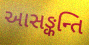
આસઙ્કન્તિ